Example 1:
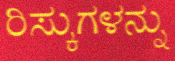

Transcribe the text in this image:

ರಿಸ್ಕುಗಳನ್ನು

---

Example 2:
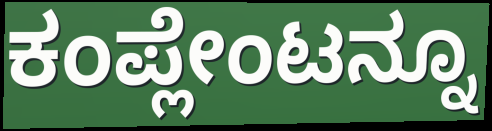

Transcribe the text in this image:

ಕಂಪ್ಲೇಂಟನ್ನೂ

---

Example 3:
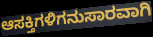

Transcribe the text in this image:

ಆಸಕ್ತಿಗಳಿಗನುಸಾರವಾಗಿ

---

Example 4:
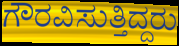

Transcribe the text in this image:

ಗೌರವಿಸುತ್ತಿದ್ದರು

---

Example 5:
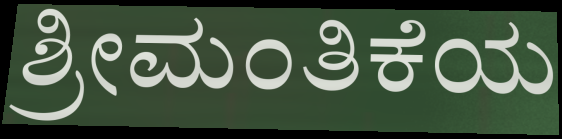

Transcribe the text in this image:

ಶ್ರೀಮಂತಿಕೆಯ